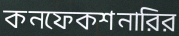
কনফেকশনারির